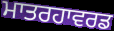
ਮਾਤਰਹਾਵਰਡ